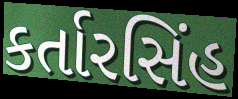
કર્તારસિંહ